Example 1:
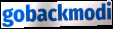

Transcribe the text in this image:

gobackmodi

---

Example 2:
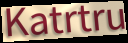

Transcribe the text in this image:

Katrtru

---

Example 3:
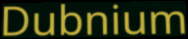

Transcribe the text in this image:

Dubnium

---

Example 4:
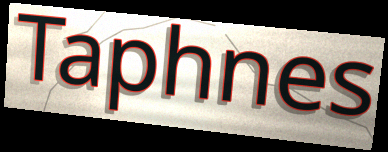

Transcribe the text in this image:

Taphnes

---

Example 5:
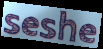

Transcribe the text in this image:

seshe